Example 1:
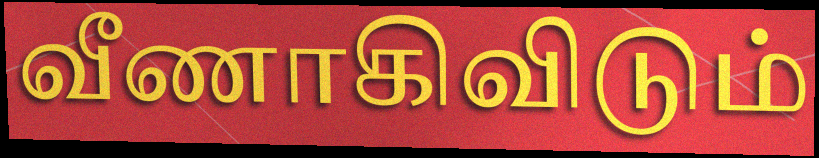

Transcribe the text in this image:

வீணாகிவிடும்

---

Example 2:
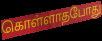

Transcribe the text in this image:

கொள்ளாதபோது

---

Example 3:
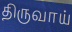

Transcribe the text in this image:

திருவாய்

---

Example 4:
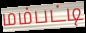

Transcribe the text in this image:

மம்பட்டி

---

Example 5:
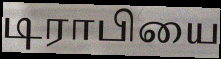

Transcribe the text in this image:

டிராபியை